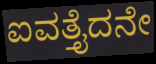
ಐವತ್ತೈದನೇ